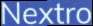
Nextro